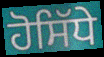
ਹੋਸਿੱਧੇ